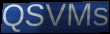
QSVMs